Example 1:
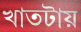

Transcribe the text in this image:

খাতটায়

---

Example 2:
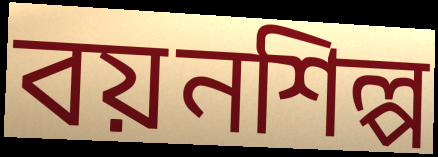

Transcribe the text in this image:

বয়নশিল্প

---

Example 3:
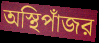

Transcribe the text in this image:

অস্থিপাঁজর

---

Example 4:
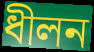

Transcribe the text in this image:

ধীলন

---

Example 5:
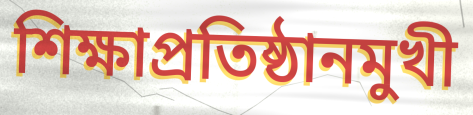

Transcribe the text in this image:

শিক্ষাপ্রতিষ্ঠানমুখী